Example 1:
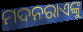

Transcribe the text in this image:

ମଦନରାଏଙ୍କୁ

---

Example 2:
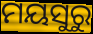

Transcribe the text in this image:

ମୟସୁରୁ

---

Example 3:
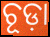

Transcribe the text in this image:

ଚୂଡ଼ା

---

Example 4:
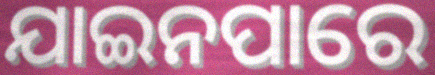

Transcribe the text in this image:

ଯାଇନପାରେ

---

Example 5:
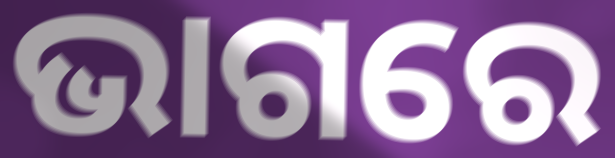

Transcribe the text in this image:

ଭାଗରେ